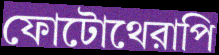
ফোটোথেরাপি